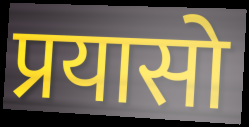
प्रयासो